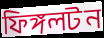
ফিঙ্গলটন